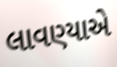
લાવણ્યાએ